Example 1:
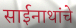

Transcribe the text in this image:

साईनाथांचे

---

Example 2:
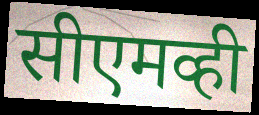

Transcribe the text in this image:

सीएमव्ही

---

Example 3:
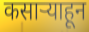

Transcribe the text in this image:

कसाऱ्याहून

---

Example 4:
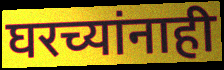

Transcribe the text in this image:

घरच्यांनाही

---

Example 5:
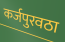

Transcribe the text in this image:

कर्जपुरवठा